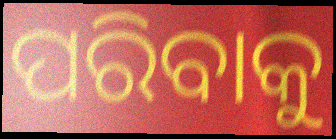
ପରିବାକୁ